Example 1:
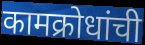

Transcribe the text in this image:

कामक्रोधांची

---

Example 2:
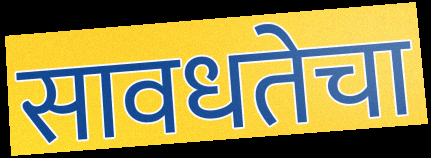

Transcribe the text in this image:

सावधतेचा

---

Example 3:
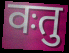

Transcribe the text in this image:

वःतु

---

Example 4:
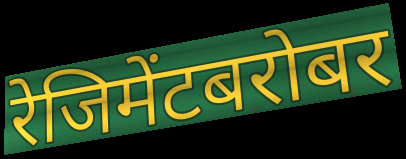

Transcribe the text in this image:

रेजिमेंटबरोबर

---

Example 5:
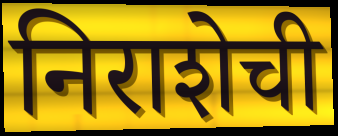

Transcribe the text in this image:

निराशेची